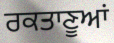
ਰਕਤਾਣੂਆਂ